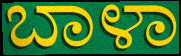
ಬಾಳಾ